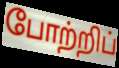
போற்றிப்